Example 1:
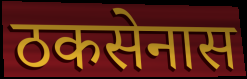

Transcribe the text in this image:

ठकसेनास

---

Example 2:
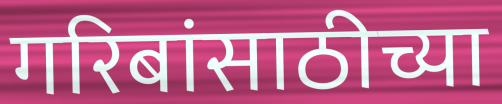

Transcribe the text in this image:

गरिबांसाठीच्या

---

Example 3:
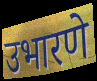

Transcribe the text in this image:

उभारणे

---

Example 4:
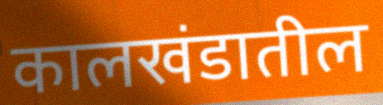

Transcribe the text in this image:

कालखंडातील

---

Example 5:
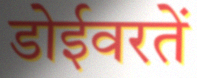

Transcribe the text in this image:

डोईवरतें